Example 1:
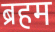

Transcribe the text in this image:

ब्रहम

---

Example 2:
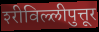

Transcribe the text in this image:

श्रीविल्लीपुत्तूर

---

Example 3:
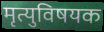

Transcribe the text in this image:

मृत्युविषयक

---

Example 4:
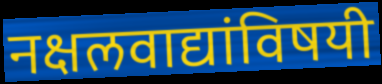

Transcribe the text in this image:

नक्षलवाद्यांविषयी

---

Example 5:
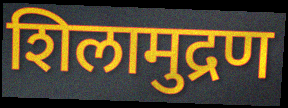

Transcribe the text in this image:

शिलामुद्रण